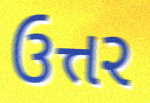
ઉત્તર